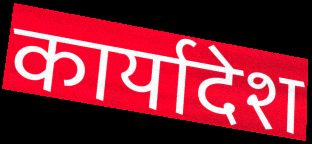
कार्यादेश